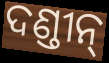
ଦଣ୍ଡୀନ୍